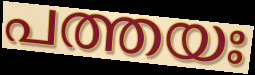
പത്തയഃ